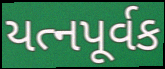
યત્નપૂર્વક